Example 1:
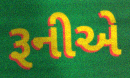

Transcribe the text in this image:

રૂનીએ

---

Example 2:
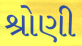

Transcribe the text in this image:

શ્રોણી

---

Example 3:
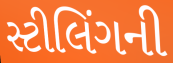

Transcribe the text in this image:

સ્ટીલિંગની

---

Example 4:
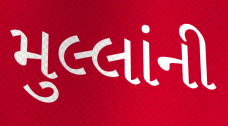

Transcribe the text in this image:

મુલ્લાંની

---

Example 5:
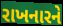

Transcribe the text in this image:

રાખનારને